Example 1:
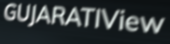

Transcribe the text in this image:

GUJARATIView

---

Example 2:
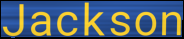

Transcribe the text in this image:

Jackson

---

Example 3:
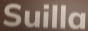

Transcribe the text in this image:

Suilla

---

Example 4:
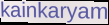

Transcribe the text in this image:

kainkaryam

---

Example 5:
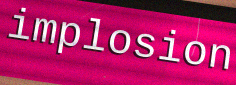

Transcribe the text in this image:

implosion